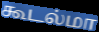
கூடல்மா